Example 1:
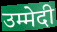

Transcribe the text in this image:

उम्मेदी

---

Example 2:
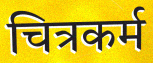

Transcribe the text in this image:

चित्रकर्म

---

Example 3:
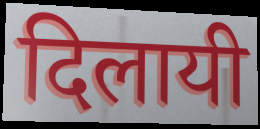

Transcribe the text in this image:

दिलायी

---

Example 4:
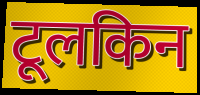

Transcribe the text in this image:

टूलकिन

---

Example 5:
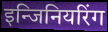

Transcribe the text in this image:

इन्जिनियरिंग